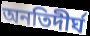
অনতিদীর্ঘ